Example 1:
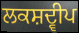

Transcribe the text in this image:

ਲਕਸ਼ਦ੍ਵੀਪ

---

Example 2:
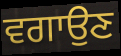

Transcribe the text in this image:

ਵਗਾਉਣ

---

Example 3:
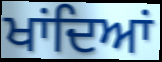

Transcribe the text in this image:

ਖਾਂਦਿਆਂ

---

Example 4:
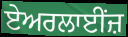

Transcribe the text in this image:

ਏਅਰਲਾਈਂਜ਼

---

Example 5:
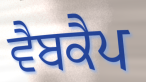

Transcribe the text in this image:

ਵੈਬਕੈਪ